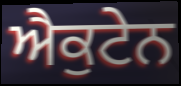
ਐਕੁਟੇਨ